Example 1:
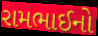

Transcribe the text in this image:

રામભાઈનો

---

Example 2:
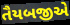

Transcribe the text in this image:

તૈયબજીએ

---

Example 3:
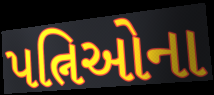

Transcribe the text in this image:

પત્નિઓના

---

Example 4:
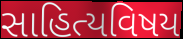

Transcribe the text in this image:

સાહિત્યવિષય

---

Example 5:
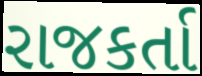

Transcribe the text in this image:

રાજકર્તા